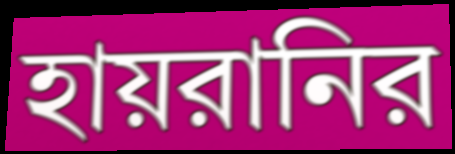
হায়রানির